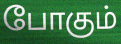
போகும்